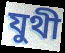
যুথী